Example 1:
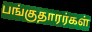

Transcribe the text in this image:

பங்குதாரர்கள்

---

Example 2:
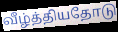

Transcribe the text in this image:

வீழ்த்தியதோடு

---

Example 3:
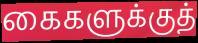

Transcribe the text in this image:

கைகளுக்குத்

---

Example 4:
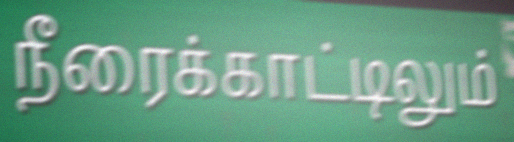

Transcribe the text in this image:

நீரைக்காட்டிலும்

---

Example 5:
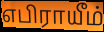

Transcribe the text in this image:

எபிராயீம்